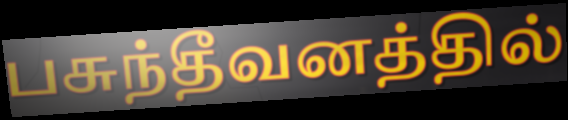
பசுந்தீவனத்தில்